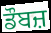
ਡੌਬਜ਼